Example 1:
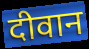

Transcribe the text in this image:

दीवान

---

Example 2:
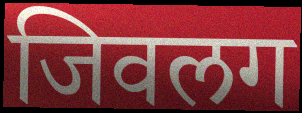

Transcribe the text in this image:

जिवलग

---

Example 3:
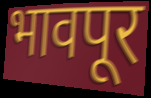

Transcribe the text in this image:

भावपूर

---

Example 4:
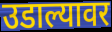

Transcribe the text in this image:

उडाल्यावर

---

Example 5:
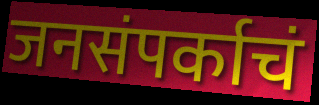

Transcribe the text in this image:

जनसंपर्काचं